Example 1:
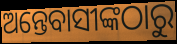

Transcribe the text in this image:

ଅନ୍ତେବାସୀଙ୍କଠାରୁ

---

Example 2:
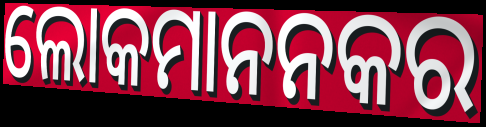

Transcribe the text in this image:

ଲୋକମାନନକର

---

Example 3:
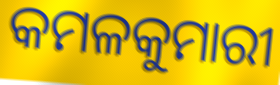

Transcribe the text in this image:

କମଳକୁମାରୀ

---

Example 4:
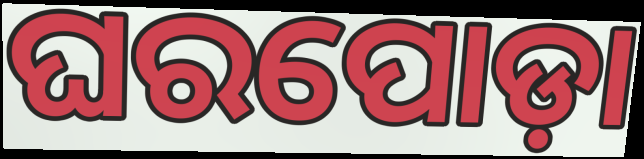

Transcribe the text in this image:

ଘରପୋଡ଼ା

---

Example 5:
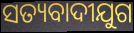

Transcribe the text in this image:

ସତ୍ୟବାଦୀଯୁଗ